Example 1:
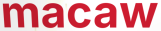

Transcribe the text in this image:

macaw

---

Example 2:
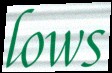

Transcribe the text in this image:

lows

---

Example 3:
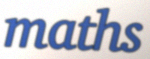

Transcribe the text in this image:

maths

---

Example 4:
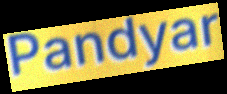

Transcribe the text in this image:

Pandyar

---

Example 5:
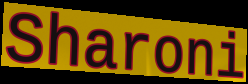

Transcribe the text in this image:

Sharoni